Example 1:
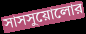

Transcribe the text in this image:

সাসসুয়োলোর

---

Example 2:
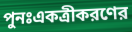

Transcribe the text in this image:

পুনঃএকত্রীকরণের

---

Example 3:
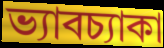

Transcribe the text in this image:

ভ্যাবচ্যাকা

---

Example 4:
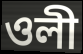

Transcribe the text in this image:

ওলী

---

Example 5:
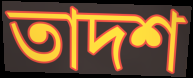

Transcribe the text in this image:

তাদশ